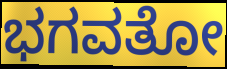
ಭಗವತೋ